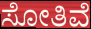
ಸೋತಿವೆ